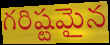
గరిష్టమైన